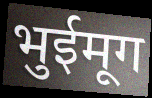
भुईमूग